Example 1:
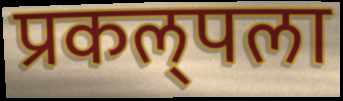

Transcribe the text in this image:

प्रकल्पला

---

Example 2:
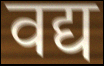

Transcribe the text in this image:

वद्य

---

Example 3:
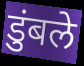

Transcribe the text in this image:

डुंबले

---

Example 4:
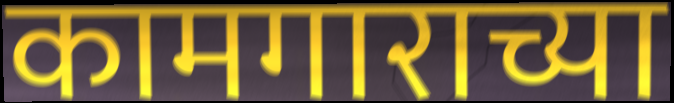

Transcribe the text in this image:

कामगाराच्या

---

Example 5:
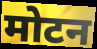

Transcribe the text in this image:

मोटन